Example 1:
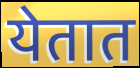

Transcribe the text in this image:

येतात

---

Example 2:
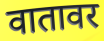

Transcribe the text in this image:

वातावर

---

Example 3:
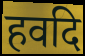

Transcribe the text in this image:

हवदि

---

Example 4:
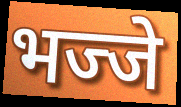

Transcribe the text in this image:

भज्जे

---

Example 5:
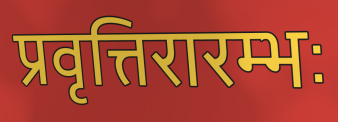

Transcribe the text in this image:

प्रवृत्तिरारम्भः